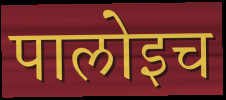
पालोइच